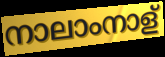
നാലാംനാള്